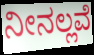
ನೀನಲ್ಲವೆ